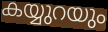
കയ്യുറയും